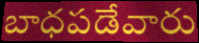
బాధపడేవారు